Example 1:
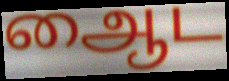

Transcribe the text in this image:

ஆைட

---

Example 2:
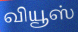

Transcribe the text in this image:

வியூஸ்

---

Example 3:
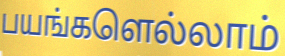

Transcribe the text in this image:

பயங்களெல்லாம்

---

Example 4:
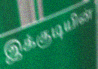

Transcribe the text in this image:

இக்குடியின்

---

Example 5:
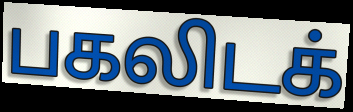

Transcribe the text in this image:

பகலிடக்